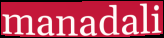
manadali